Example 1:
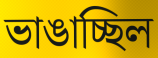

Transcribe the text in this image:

ভাঙাচ্ছিল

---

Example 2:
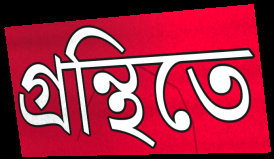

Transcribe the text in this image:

গ্রন্থিতে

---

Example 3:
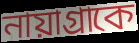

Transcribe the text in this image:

নায়াগ্রাকে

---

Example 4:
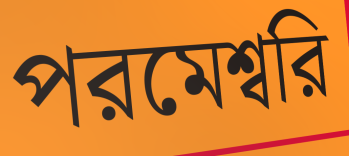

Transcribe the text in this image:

পরমেশ্বরি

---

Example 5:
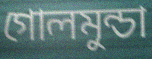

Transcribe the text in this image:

গোলমুন্ডা